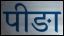
पीङा